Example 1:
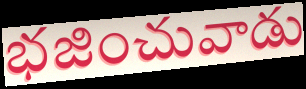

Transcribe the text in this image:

భజించువాడు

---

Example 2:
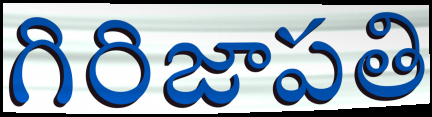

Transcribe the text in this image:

గిరిజాపతి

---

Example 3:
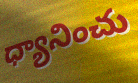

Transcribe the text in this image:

ధ్యానించు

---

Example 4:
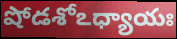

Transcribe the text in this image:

షోడశోఽధ్యాయః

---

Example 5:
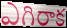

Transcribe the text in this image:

ఎగిరాక